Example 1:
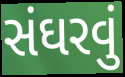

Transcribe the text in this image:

સંઘરવું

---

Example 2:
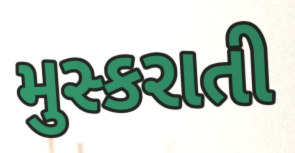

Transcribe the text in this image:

મુસ્કરાતી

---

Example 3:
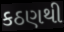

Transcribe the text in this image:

કઠણથી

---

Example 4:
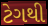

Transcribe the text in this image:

ટેગથી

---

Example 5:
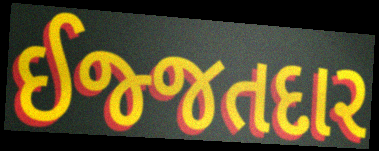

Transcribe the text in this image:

ઈજ્જતદાર